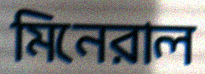
মিনেরাল